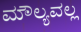
ಮೌಲ್ಯವಲ್ಲ